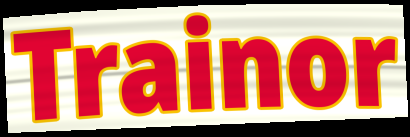
Trainor